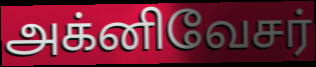
அக்னிவேசர்